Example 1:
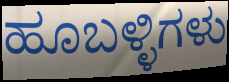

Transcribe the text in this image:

ಹೂಬಳ್ಳಿಗಳು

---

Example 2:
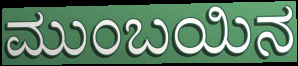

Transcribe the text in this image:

ಮುಂಬಯಿನ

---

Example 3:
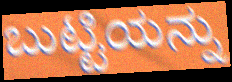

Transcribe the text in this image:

ಬುಟ್ಟಿಯನ್ನು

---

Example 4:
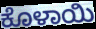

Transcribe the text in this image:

ಕೊಳಾಯಿ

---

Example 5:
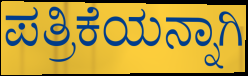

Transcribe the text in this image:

ಪತ್ರಿಕೆಯನ್ನಾಗಿ